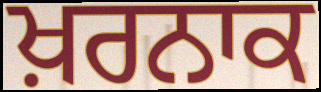
ਖ਼ਰਨਾਕ